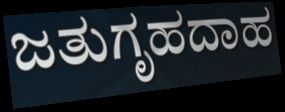
ಜತುಗೃಹದಾಹ